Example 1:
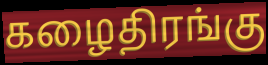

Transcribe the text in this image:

கழைதிரங்கு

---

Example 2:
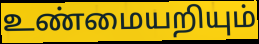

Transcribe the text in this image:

உண்மையறியும்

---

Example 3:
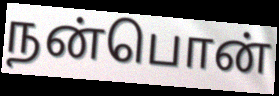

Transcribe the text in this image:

நன்பொன்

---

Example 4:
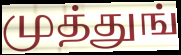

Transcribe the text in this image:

முத்துங்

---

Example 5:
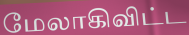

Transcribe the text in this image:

மேலாகிவிட்ட